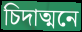
চিদাত্মনে